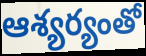
ఆశ్యర్యంతో